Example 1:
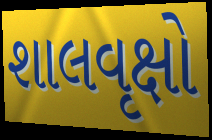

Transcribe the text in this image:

શાલવૃક્ષો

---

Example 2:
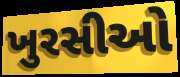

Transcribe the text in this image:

ખુરસીઓ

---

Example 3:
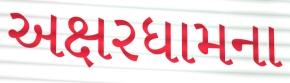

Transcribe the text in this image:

અક્ષરધામના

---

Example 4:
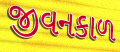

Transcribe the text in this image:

જીવનકાળ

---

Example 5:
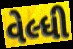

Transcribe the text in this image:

વેલ્ધી